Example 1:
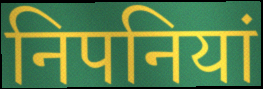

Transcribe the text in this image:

निपनियां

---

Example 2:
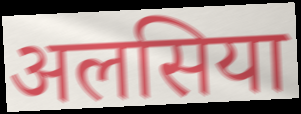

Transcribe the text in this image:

अलसिया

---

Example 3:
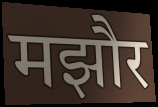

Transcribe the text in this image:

मझौर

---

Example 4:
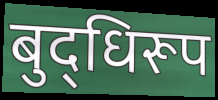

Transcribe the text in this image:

बुद्धिरूप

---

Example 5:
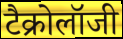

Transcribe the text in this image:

टैक्रोलॉजी